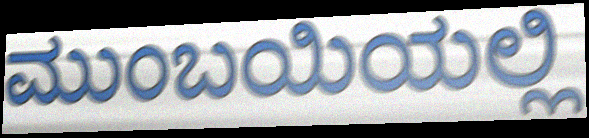
ಮುಂಬಯಿಯಲ್ಲಿ